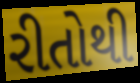
રીતોથી